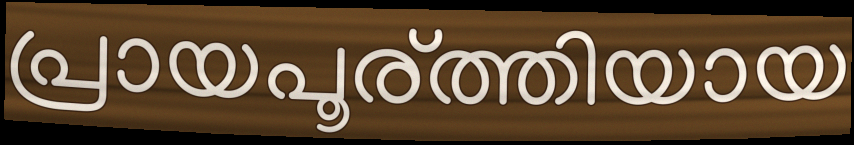
പ്രായപൂര്ത്തിയായ